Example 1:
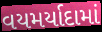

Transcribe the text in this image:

વયમર્યાદામાં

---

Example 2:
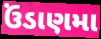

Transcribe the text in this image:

ઉંડાણમા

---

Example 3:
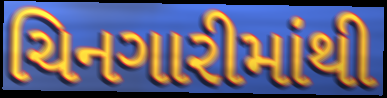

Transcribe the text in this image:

ચિનગારીમાંથી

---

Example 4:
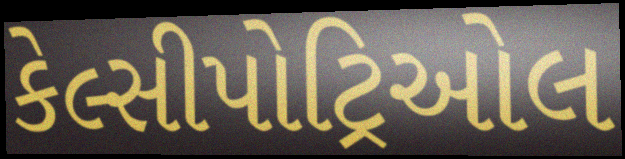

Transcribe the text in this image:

કેલ્સીપોટ્રિઓલ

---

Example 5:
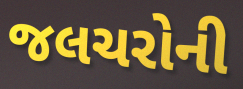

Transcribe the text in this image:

જલચરોની